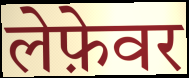
लेफ़ेवर